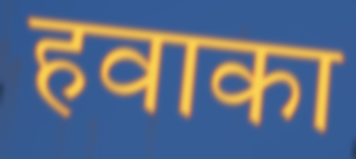
हवाका